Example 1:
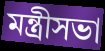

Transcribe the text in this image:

মন্ত্রীসভা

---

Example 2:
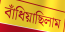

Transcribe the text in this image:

বাঁধিয়াছিলাম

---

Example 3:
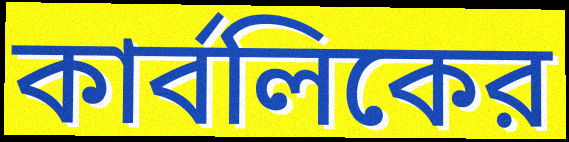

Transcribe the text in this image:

কার্বলিকের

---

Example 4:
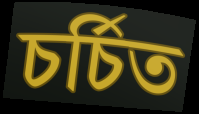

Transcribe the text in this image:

চর্চিত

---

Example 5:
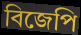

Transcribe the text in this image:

বিজেপি